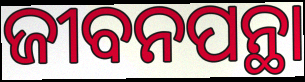
ଜୀବନପନ୍ଥା